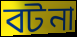
বটনা